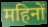
महिनों